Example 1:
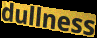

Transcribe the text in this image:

dullness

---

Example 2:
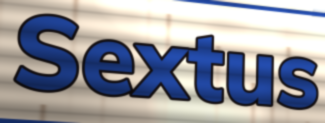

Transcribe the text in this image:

Sextus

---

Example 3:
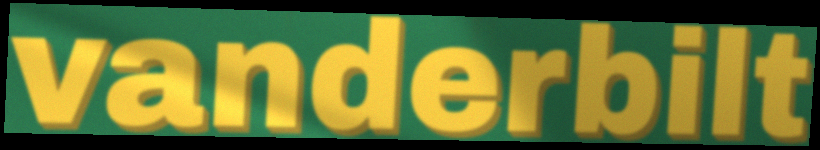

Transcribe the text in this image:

vanderbilt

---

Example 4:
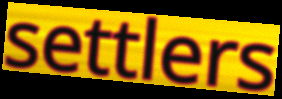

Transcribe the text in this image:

settlers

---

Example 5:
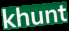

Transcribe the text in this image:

khunt